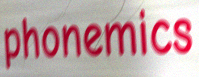
phonemics